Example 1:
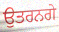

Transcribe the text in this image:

ਉਤਰਨਗੇ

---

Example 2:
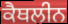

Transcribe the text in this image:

ਕੈਥਲੀਨ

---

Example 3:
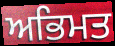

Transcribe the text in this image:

ਅਭਿਮਤ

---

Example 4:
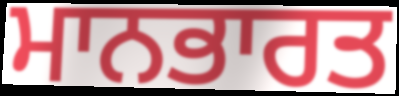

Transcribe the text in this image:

ਮਾਨਭਾਰਤ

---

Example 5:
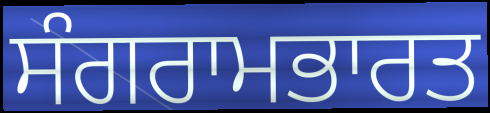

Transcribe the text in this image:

ਸੰਗਰਾਮਭਾਰਤ